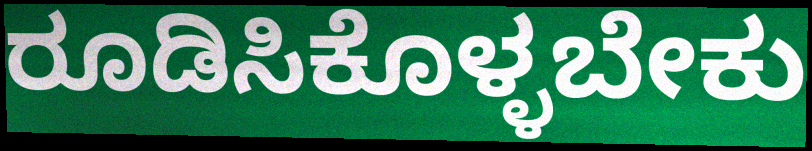
ರೂಡಿಸಿಕೊಳ್ಳಬೇಕು